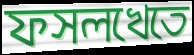
ফসলখেতে